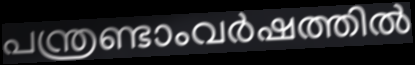
പന്ത്രണ്ടാംവർഷത്തിൽ